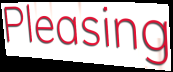
Pleasing